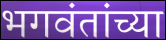
भगवंतांच्या